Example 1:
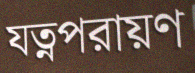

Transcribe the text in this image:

যত্নপরায়ণ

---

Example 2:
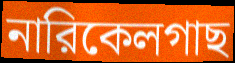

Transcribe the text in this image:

নারিকেলগাছ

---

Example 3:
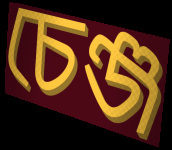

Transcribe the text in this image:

চেঞ্জ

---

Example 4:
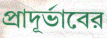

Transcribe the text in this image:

প্রাদূর্ভাবের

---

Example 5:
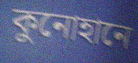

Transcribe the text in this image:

কুনোহানে